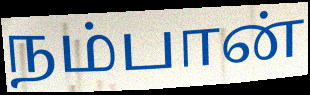
நம்பான்